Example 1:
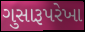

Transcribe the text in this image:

ગુસારૂપરેખા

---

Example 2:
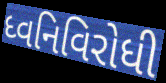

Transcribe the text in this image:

ધ્વનિવિરોધી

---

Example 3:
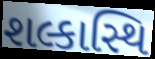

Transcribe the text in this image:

શલ્કાસ્થિ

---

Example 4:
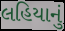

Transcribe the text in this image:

લહિયાનું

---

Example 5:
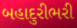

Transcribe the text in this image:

બહાદુરીભરી